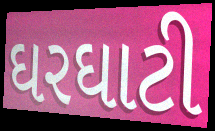
ઘરઘાટી